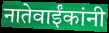
नातेवाईंकांनी